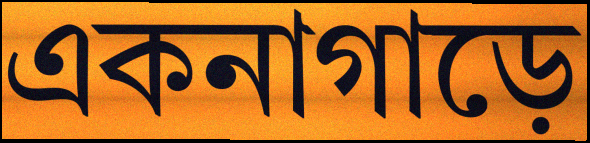
একনাগাড়ে